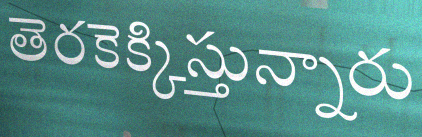
తెరకెక్కిస్తున్నారు